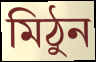
মিঠুন